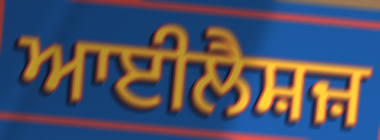
ਆਈਲੈਸ਼ਜ਼